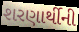
શરણાર્થીની